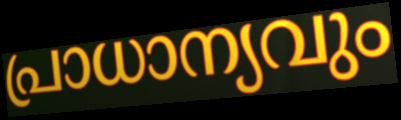
പ്രാധാന്യവും